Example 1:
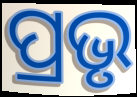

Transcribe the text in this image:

ପ୍ରଭୃ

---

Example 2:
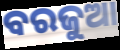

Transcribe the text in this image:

ବରଜୁଆ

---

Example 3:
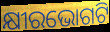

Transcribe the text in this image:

କ୍ଷୀରଭୋଗଟି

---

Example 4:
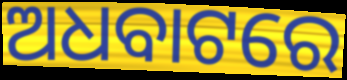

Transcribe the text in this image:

ଅଧବାଟରେ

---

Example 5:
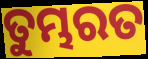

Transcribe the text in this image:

ତୁମ୍ଭରତ